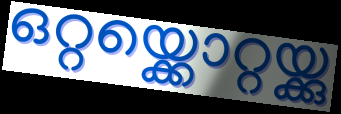
ഒറ്റയ്ക്കൊറ്റയ്ക്കു